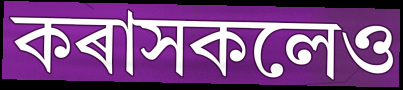
কৰাসকলেও